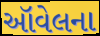
ઑવેલના